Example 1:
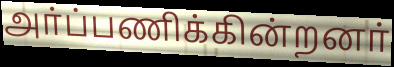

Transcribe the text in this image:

அர்ப்பணிக்கின்றனர்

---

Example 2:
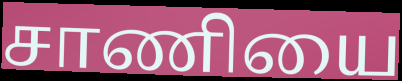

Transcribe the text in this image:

சாணியை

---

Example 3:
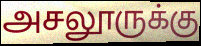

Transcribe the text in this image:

அசலூருக்கு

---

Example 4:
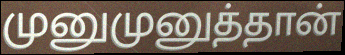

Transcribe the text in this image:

முனுமுனுத்தான்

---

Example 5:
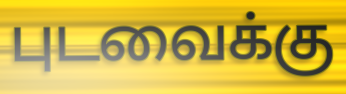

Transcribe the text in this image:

புடவைக்கு